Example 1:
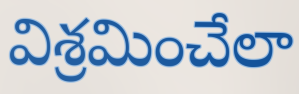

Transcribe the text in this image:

విశ్రమించేలా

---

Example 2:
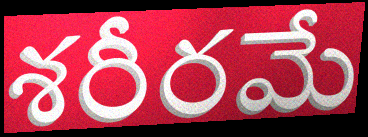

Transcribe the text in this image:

శరీరమే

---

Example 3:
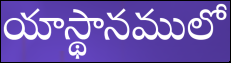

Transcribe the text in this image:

యాస్థానములో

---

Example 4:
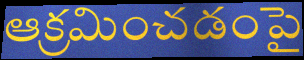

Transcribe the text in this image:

ఆక్రమించడంపై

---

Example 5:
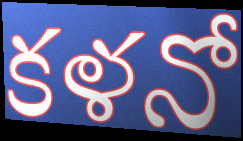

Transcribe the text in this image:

కళనో